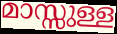
മാസ്സുള്ള